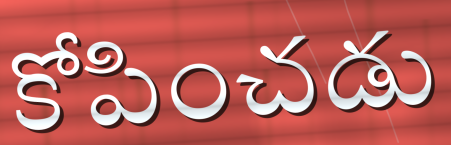
కోపించడు